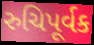
રુચિપૂર્વક